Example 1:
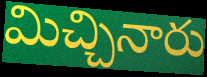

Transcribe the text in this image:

మిచ్చినారు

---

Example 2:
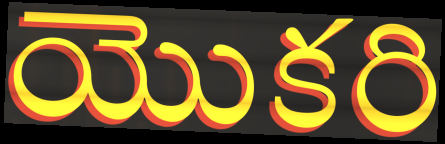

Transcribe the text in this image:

యొకరి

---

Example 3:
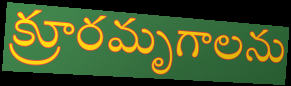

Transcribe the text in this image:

క్రూరమృగాలను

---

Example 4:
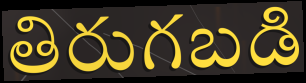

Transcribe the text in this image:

తిరుగబడి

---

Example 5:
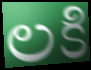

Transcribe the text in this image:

లకి